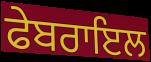
ਫੇਬਰਾਇਲ